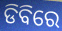
ଡିବିରେ